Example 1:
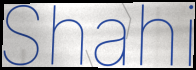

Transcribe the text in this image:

Shahi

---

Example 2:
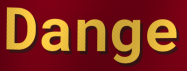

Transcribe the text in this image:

Dange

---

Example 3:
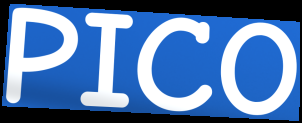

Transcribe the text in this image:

PICO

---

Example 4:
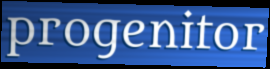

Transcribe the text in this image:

progenitor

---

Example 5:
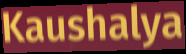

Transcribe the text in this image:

Kaushalya